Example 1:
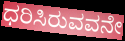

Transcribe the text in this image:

ಧರಿಸಿರುವವನೇ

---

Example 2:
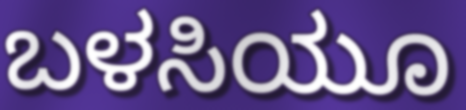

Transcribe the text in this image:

ಬಳಸಿಯೂ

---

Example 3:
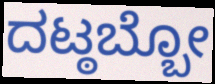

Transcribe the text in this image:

ದಟ್ಠಬ್ಬೋ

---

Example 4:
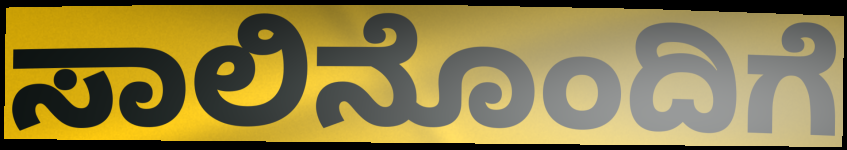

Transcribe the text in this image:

ಸಾಲಿನೊಂದಿಗೆ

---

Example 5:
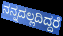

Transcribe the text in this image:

ನನ್ನದಲ್ಲದಿದ್ದರೆ